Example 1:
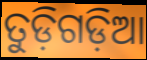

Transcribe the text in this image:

ତୁଡ଼ିଗଡ଼ିଆ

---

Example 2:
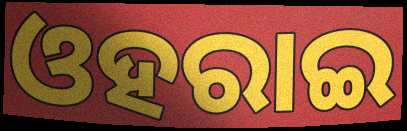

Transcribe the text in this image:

ଓହରାଇ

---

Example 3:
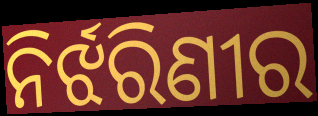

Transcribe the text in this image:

ନିର୍ଝରିଣୀର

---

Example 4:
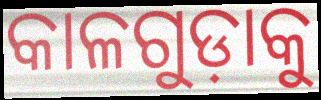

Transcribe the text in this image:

କାଳଗୁଡ଼ାକୁ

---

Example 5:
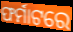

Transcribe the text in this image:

ଫର୍ମାଟରେ